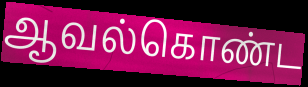
ஆவல்கொண்ட